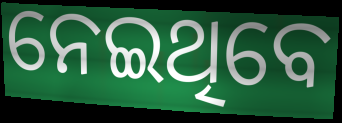
ନେଇଥିବେ